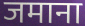
जमाना